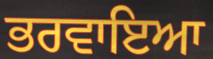
ਭਰਵਾਇਆ